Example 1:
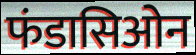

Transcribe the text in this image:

फंडासिओन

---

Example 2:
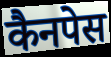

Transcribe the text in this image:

कैनपेस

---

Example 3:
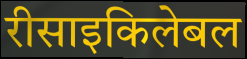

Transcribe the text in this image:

रीसाइकिलेबल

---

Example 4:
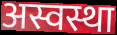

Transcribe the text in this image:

अस्वस्था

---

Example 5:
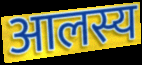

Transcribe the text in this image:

आलस्‍य